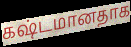
கஷ்டமானதாக